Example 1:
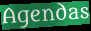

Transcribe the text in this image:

Agendas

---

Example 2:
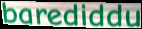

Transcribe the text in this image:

barediddu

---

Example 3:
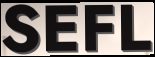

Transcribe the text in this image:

SEFL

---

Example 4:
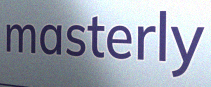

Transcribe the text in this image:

masterly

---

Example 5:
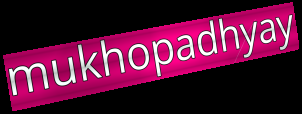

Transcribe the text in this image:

mukhopadhyay